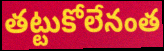
తట్టుకోలేనంత